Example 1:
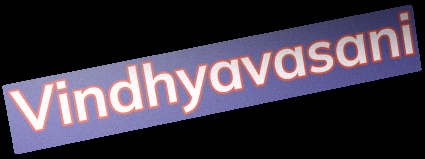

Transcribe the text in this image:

Vindhyavasani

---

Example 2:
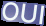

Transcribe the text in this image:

OUI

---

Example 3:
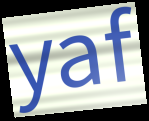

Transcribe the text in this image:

yaf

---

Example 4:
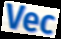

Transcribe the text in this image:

Vec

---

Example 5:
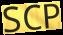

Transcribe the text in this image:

SCP